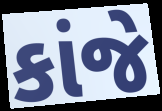
કાંજે